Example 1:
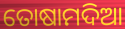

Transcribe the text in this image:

ତୋଷାମଦିଆ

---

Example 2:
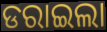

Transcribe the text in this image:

ଡରାଇଲା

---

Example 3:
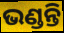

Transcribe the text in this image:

ଭଣ୍ଡନ୍ତି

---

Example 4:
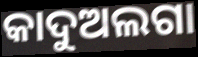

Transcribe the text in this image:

କାଦୁଅଲଗା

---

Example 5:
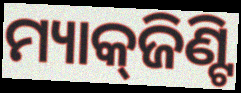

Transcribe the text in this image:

ମ୍ୟାକ୍‌ଜିଣ୍ଟି